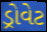
ડ્રોવેટ